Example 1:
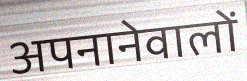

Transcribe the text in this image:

अपनानेवालों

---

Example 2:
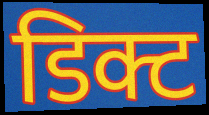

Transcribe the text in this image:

डिक्ट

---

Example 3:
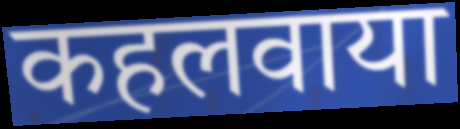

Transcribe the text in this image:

कहलवाया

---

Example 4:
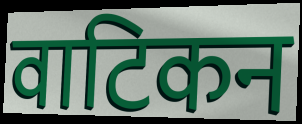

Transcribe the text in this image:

वाटिकन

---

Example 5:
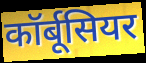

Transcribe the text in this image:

कॉर्बूसियर